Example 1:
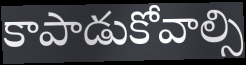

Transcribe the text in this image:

కాపాడుకోవాల్సి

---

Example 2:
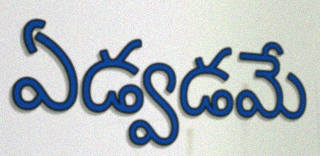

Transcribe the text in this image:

ఏడ్వడమే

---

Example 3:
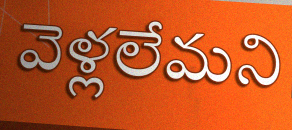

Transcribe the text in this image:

వెళ్లలేమని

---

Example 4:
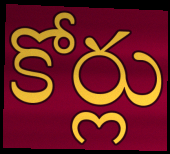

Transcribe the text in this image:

కోర్లు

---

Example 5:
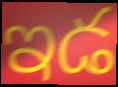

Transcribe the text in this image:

ఇడ